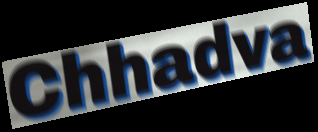
Chhadva